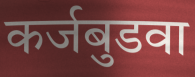
कर्जबुडवा